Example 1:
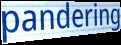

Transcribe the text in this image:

pandering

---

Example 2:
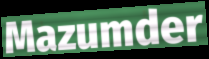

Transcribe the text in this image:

Mazumder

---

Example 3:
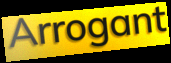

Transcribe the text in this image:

Arrogant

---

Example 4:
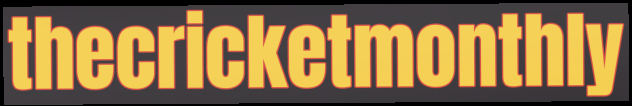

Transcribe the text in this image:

thecricketmonthly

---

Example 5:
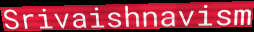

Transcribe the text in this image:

Srivaishnavism